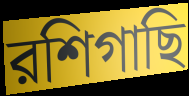
রশিগাছি